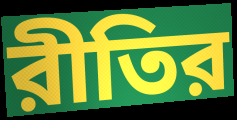
রীতির